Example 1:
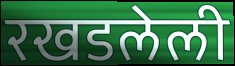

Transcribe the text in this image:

रखडलेली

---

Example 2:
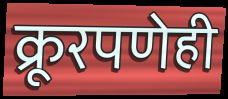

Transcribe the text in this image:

क्रूरपणेही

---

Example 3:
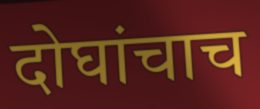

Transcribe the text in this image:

दोघांचाच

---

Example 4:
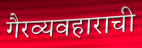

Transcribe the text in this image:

गैरव्यवहाराची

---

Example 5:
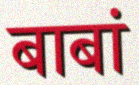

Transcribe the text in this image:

बाबां